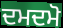
ਦਮਦਮੋ